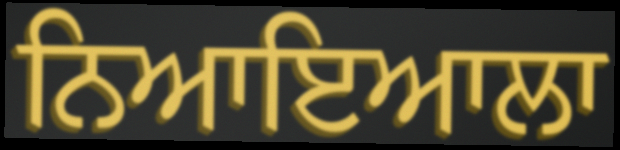
ਨਿਆਇਆਲਾ